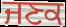
ਜਣਕ